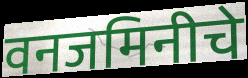
वनजमिनीचे